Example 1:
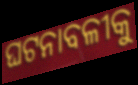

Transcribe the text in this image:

ଘଟନାବଳୀକୁ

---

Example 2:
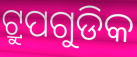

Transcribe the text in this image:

ଟ୍ରୁପଗୁଡିକ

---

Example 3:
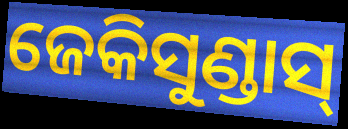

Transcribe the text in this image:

ଜେକିସୁଣ୍ଡାସ୍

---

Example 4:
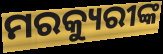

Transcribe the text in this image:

ମରକ୍ୟୁରୀଙ୍କ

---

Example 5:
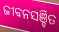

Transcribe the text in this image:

ଜୀବନସଞ୍ଚିତ